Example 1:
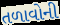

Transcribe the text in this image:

તળાવોની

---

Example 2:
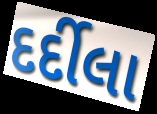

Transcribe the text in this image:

દર્દીલા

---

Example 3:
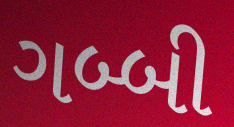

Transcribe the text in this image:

ગબ્બી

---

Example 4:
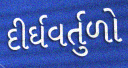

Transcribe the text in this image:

દીર્ઘવર્તુળો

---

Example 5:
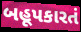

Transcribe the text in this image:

બહૂપકારતં